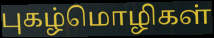
புகழ்மொழிகள்